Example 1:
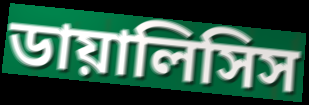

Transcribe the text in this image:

ডায়ালিসিস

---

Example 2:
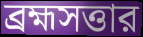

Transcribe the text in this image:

ব্রহ্মসত্তার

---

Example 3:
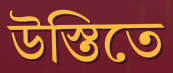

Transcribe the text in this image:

উস্তিতে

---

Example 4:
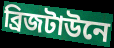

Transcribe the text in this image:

ব্রিজটাউনে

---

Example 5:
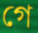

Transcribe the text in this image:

গে